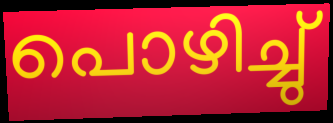
പൊഴിച്ചു്